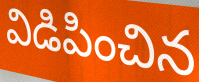
విడిపించిన